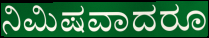
ನಿಮಿಷವಾದರೂ